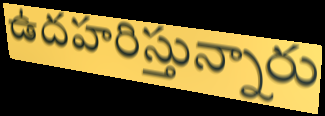
ఉదహరిస్తున్నారు